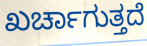
ಖರ್ಚಾಗುತ್ತದೆ